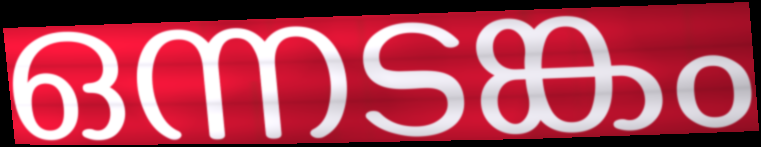
ഒന്നടങ്കം